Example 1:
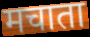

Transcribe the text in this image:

मचाता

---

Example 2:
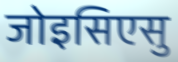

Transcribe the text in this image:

जोइसिएसु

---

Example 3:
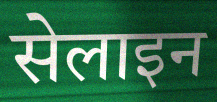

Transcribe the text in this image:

सेलाइन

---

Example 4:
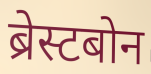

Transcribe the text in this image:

ब्रेस्टबोन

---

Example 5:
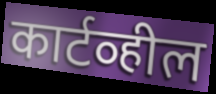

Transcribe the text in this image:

कार्टव्हील